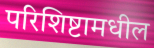
परिशिष्टामधील